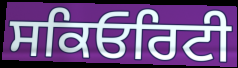
ਸਕਿਓਰਿਟੀ